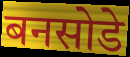
बनसोडे